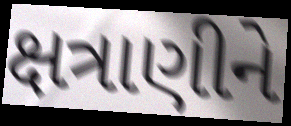
ક્ષત્રાણીને